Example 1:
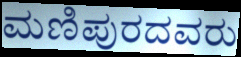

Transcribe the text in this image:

ಮಣಿಪುರದವರು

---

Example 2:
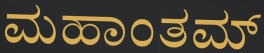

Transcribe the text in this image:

ಮಹಾಂತಮ್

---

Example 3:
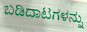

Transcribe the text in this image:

ಬಡಿದಾಟಗಳನ್ನು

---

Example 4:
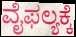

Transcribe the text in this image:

ವೈಫಲ್ಯಕ್ಕೆ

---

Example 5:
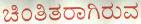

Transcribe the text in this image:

ಚಿಂತಿತರಾಗಿರುವ